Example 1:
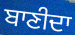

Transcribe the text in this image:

ਬਾਣੀਦਾ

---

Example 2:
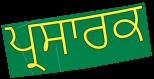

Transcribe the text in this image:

ਪ੍ਰਸਾਰਕ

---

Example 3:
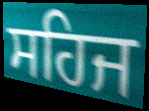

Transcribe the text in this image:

ਸਹਿਜ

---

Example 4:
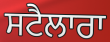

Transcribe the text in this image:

ਸਟੈਲਾਰਾ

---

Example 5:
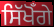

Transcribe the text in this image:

ਸਿੱਖੋਁਗੇ